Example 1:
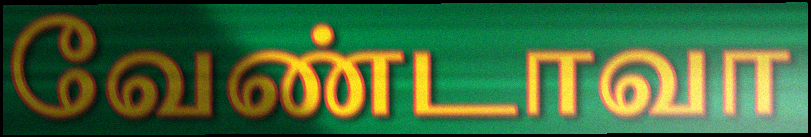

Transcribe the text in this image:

வேண்டாவா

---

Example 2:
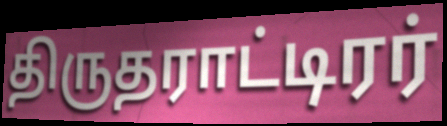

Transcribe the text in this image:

திருதராட்டிரர்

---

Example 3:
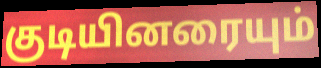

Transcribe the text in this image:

குடியினரையும்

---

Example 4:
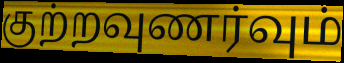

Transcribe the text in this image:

குற்றவுணர்வும்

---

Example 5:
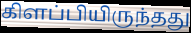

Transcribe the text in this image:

கிளப்பியிருந்தது